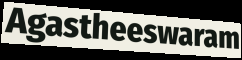
Agastheeswaram